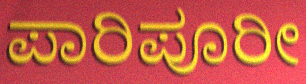
ಪಾರಿಪೂರೀ